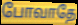
போவாதே